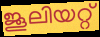
ജൂലിയറ്റ്